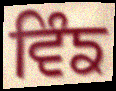
ਵਿੰਙ